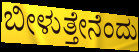
ಬೀಳುತ್ತೇನೆಂದು